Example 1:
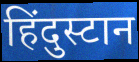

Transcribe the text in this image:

हिंदुस्टान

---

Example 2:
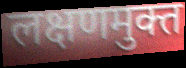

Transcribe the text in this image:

लक्षणमुक्त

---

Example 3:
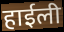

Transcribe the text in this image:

हाईली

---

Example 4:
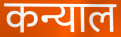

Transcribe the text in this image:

कन्याल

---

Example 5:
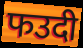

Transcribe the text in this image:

फउदी